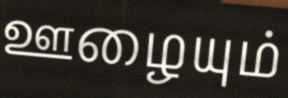
ஊழையும்